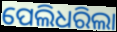
ପେଲିଧରିଲା